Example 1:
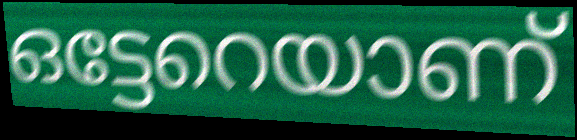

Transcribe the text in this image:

ഒട്ടേറെയാണ്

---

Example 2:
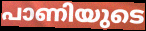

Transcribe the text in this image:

പാണിയുടെ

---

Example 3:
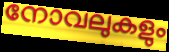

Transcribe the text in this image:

നോവലുകളും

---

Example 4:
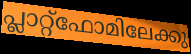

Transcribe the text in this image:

പ്ലാറ്റ്ഫോമിലേക്കു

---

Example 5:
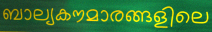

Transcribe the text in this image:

ബാല്യകൗമാരങ്ങളിലെ